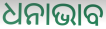
ଧନାଭାବ